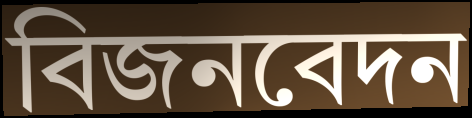
বিজনবেদন